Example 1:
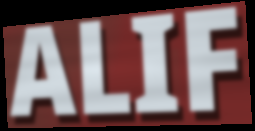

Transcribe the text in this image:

ALIF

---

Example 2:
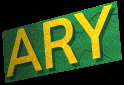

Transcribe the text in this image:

ARY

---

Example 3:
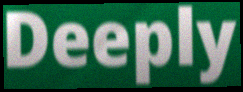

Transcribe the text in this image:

Deeply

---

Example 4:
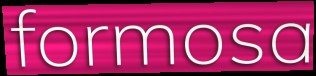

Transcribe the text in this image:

formosa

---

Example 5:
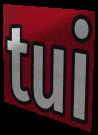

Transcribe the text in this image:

tui